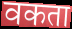
वकता